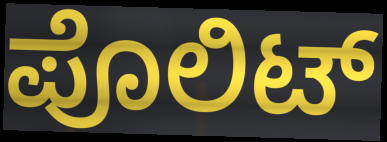
ಪೊಲಿಟ್